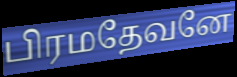
பிரமதேவனே